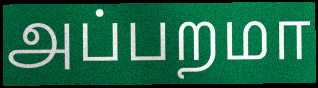
அப்பறமா